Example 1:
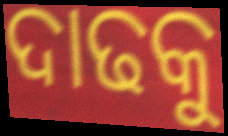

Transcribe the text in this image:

ଦାଢକୁ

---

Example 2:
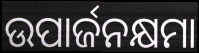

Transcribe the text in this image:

ଉପାର୍ଜନକ୍ଷମା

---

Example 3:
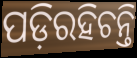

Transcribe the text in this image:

ପଡ଼ିରହିଚନ୍ତି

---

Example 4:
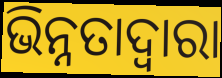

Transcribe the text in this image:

ଭିନ୍ନତାଦ୍ୱାରା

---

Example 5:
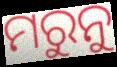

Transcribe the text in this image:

ମରୁନୁ